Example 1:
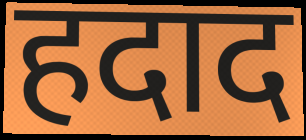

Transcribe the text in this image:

हदाद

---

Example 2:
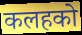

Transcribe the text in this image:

कलहको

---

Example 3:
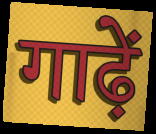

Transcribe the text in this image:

गाढ़ें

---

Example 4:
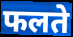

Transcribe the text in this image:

फलते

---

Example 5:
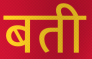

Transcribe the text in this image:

बती